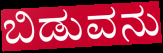
ಬಿಡುವನು